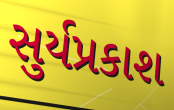
સુર્યપ્રકાશ